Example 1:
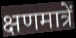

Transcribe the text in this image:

क्षणमात्रें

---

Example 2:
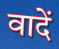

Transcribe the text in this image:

वादें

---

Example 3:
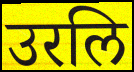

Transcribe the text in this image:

उरलि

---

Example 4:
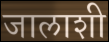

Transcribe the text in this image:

जालाशी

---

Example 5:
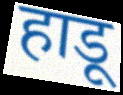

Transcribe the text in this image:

हाडू